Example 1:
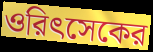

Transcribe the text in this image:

ওরিৎসেকের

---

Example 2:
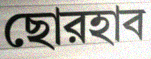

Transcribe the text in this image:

ছোরহাব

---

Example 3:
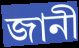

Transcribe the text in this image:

জানী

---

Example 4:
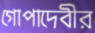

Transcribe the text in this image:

গোপাদেবীর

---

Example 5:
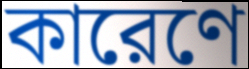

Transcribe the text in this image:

কারেণে